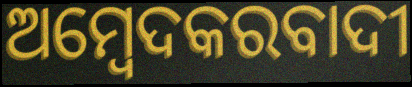
ଅମ୍ବେଦକରବାଦୀ